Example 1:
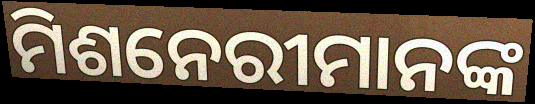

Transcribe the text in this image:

ମିଶନେରୀମାନଙ୍କ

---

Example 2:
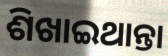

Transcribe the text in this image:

ଶିଖାଇଥାନ୍ତା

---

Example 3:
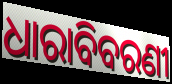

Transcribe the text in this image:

ଧାରାବିବରଣୀ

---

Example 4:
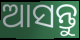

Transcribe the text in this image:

ଆସନ୍ତୁ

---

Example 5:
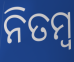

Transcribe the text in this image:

ନିତମ୍ୱ